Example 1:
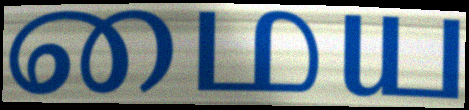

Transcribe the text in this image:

மைய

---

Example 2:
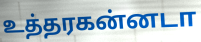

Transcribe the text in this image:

உத்தரகன்னடா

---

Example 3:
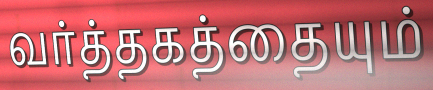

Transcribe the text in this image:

வர்த்தகத்தையும்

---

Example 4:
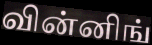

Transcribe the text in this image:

வின்னிங்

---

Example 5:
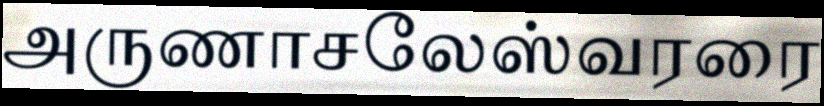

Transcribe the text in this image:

அருணாசலேஸ்வரரை